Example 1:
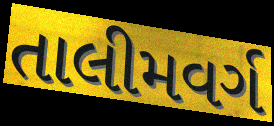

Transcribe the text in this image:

તાલીમવર્ગ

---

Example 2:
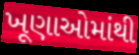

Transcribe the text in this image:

ખૂણાઓમાંથી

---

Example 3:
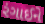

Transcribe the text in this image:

રંગાઈને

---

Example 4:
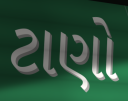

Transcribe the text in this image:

ટાણો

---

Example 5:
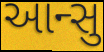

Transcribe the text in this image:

આન્સુ